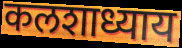
कलशाध्याय